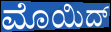
ಮೊಯಿದ್